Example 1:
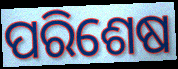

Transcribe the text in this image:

ପରିଶେଷ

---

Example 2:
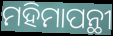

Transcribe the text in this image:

ମହିମାପନ୍ଥୀ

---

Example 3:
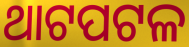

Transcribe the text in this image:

ଥାଟପଟଳ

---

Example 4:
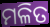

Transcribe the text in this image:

ମଳିତ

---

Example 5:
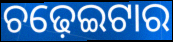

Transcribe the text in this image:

ଚଢ଼େଇଟାର